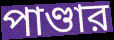
পাণ্ডার